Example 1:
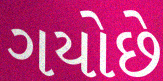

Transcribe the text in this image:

ગયોછે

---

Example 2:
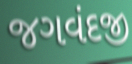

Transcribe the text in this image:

જગવંદજી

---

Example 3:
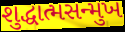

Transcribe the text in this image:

શુદ્ધાત્મસન્મુખ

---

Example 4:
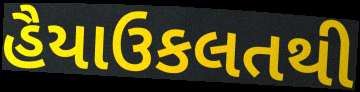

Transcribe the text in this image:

હૈયાઉકલતથી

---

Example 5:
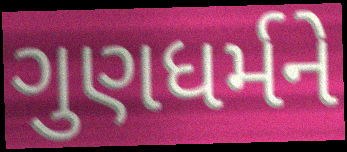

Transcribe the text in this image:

ગુણધર્મને